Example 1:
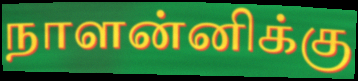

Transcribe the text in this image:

நாளன்னிக்கு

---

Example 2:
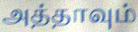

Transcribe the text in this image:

அத்தாவும்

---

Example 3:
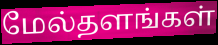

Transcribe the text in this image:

மேல்தளங்கள்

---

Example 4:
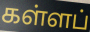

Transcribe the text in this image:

கள்ளப்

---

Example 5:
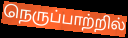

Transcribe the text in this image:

நெருப்பாற்றில்